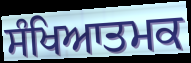
ਸੰਖਿਆਤਮਕ